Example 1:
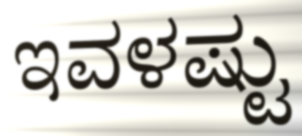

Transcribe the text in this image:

ಇವಳಷ್ಟು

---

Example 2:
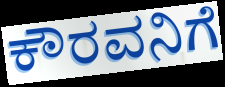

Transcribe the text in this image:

ಕೌರವನಿಗೆ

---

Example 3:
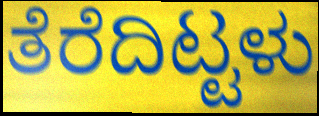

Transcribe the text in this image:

ತೆರೆದಿಟ್ಟಳು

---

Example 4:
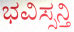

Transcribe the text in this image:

ಭವಿಸ್ಸನ್ತಿ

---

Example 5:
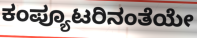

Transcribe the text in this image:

ಕಂಪ್ಯೂಟರಿನಂತೆಯೇ